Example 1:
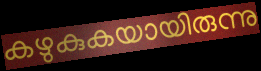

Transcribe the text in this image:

കഴുകുകയായിരുന്നു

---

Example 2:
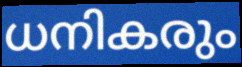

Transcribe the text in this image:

ധനികരും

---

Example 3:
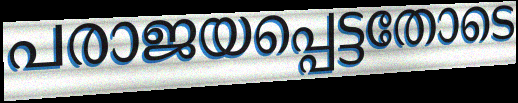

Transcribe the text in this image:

പരാജയപ്പെട്ടതോടെ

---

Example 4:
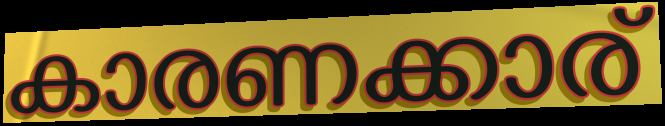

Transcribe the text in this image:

കാരണക്കാര്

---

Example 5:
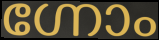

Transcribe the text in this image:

ഗ്നോം